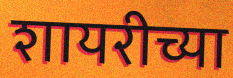
शायरीच्या